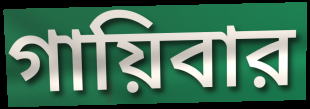
গায়িবার